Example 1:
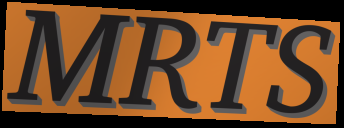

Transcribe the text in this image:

MRTS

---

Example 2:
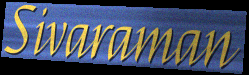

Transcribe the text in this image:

Sivaraman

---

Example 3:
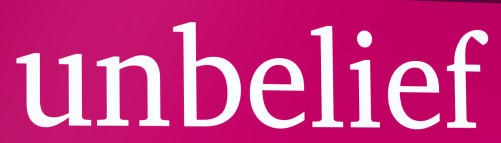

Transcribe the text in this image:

unbelief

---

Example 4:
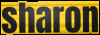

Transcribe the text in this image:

sharon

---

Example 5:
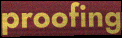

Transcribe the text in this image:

proofing